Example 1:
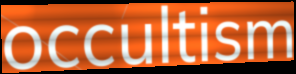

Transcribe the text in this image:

occultism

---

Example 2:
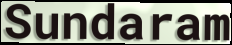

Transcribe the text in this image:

Sundaram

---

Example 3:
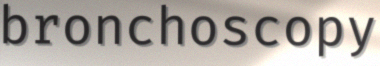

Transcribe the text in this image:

bronchoscopy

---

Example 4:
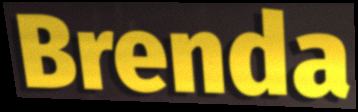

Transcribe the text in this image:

Brenda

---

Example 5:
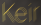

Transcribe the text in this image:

Keir